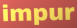
impur